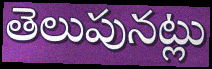
తెలుపునట్లు